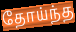
தோய்ந்த